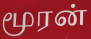
மூரன்